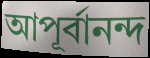
আপূর্বানন্দ